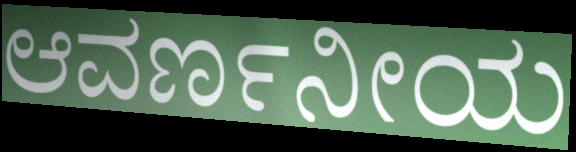
ಆವರ್ಣನೀಯ